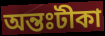
অন্তঃটীকা